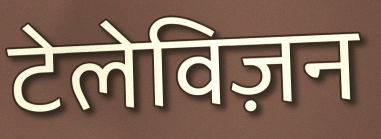
टेलेविज़न